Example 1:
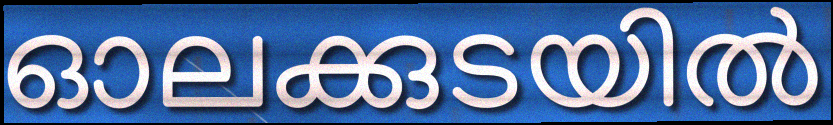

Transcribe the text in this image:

ഓലക്കുടയിൽ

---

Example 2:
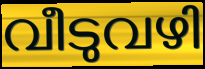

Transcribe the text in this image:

വീടുവഴി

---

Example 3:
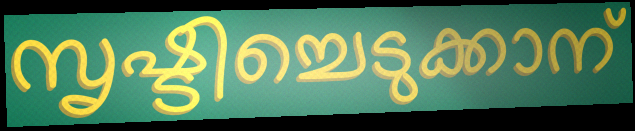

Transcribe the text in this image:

സൃഷ്ടിച്ചെടുക്കാന്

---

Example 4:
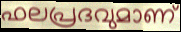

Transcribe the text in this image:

ഫലപ്രദവുമാണ്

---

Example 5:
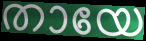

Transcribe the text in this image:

തായേ